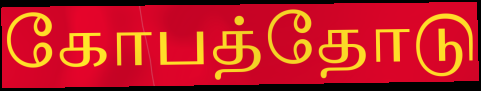
கோபத்தோடு